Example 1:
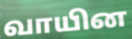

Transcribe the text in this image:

வாயின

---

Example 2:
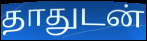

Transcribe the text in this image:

தாதுடன்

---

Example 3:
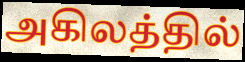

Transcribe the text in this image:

அகிலத்தில்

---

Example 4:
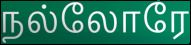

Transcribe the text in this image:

நல்லோரே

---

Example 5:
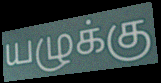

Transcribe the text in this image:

யழுக்கு